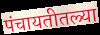
पंचायतीतल्या